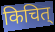
किचित्